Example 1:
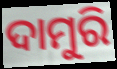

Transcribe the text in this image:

ଦାମୁରି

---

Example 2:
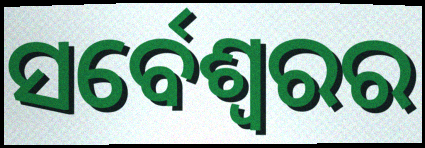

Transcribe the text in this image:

ସର୍ବେଶ୍ୱରର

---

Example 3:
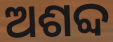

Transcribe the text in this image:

ଅଶବ୍ଦ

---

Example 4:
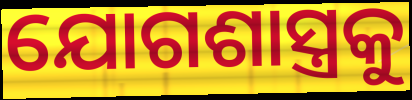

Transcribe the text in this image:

ଯୋଗଶାସ୍ତ୍ରକୁ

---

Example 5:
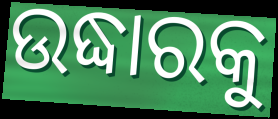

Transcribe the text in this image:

ଉଦ୍ଧାରକୁ